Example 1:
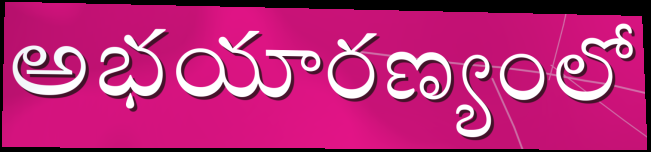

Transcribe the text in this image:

అభయారణ్యంలో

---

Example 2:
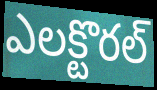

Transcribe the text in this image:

ఎలక్టొరల్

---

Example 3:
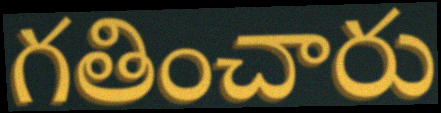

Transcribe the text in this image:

గతించారు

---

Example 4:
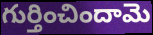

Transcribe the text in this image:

గుర్తించిందామె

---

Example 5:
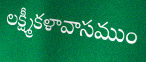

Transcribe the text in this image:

లక్ష్మీకళావాసముం